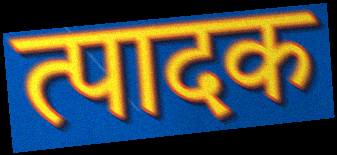
त्पादक